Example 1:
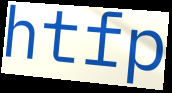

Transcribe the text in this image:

htfp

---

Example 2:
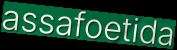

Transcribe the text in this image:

assafoetida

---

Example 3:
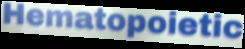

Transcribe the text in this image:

Hematopoietic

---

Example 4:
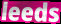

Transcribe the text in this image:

leeds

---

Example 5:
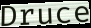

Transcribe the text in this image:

Druce